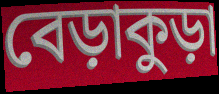
বেড়াকুড়া